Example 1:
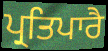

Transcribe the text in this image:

ਪ੍ਰਤਿਪਾਰੈ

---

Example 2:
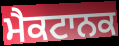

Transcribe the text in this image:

ਮੈਕਟਾਨਕ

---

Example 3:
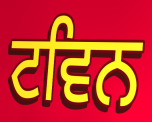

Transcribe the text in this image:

ਟਵਿਨ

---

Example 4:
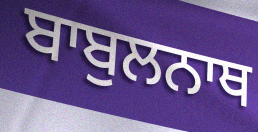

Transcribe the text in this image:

ਬਾਬੁਲਨਾਥ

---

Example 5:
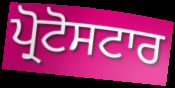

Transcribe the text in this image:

ਪ੍ਰੋਟੋਸਟਾਰ